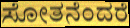
ಸೋತನೆಂದರೆ